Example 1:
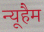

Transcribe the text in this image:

न्यूहैम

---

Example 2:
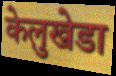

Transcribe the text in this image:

केलुखेडा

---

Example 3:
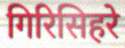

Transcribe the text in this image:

गिरिसिहरे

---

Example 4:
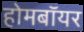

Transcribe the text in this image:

होमबॉयर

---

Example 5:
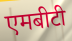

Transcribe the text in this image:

एमबीटी